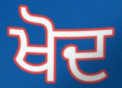
ਖੋਦ